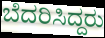
ಬೆದರಿಸಿದ್ದರು